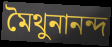
মৈথুনানন্দ